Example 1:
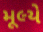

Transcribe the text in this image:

મૂલ્યે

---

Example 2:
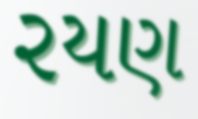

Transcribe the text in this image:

રયણ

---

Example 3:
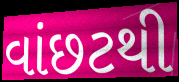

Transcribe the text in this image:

વાંછટથી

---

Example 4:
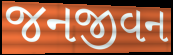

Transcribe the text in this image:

જનજીવન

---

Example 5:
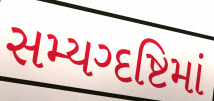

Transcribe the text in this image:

સમ્યગ્દષ્ટિમાં